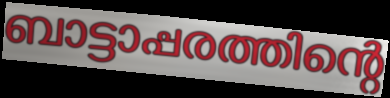
ബാട്ടാപ്പരത്തിന്റെ